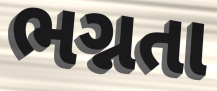
ભગ્નતા